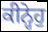
ਕੀਨ੍ਹੇਹੁ